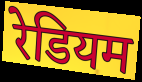
रेडियम